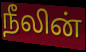
நீலின்